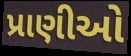
પ્રાણીઓ